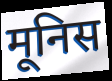
मूनिस